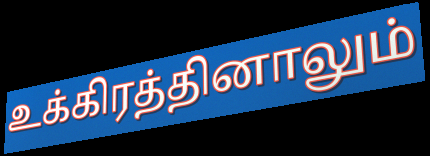
உக்கிரத்தினாலும்